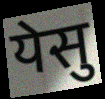
येसु